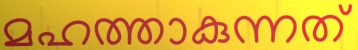
മഹത്താകുന്നത്